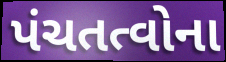
પંચતત્વોના